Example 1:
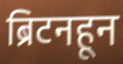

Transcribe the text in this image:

ब्रिटनहून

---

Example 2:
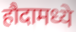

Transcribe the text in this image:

हौदामध्ये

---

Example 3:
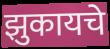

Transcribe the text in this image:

झुकायचे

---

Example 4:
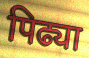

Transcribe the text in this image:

पिढ्या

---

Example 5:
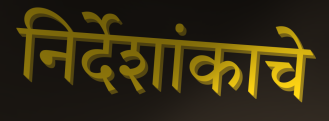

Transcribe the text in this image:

निर्देशांकाचे